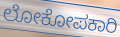
ಲೋಕೋಪಕಾರಿ